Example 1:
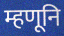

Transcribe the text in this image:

म्हणूनि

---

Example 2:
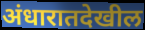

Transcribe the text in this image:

अंधारातदेखील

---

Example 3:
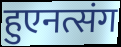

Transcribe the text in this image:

हुएनत्संग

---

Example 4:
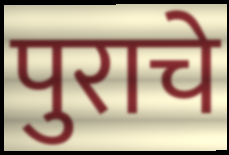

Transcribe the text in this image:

पुराचे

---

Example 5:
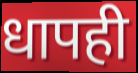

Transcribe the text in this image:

धापही